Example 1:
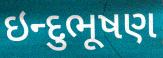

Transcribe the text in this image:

ઇન્દુભૂષણ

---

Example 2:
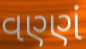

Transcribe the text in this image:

વણ્ણં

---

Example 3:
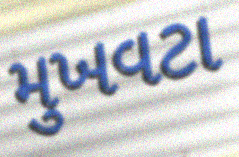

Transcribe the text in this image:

મુખવટા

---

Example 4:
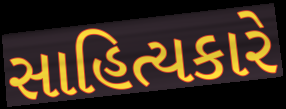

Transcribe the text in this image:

સાહિત્યકારે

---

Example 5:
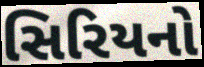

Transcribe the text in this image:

સિરિયનો